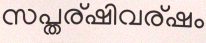
സപ്തര്ഷിവര്ഷം